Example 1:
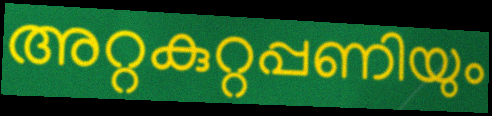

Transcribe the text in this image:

അറ്റകുറ്റപ്പണിയും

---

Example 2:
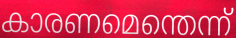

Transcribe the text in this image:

കാരണമെന്തെന്ന്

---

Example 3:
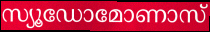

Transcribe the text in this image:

സ്യൂഡോമോണാസ്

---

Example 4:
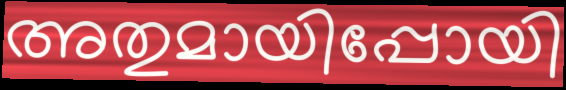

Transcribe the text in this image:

അതുമായിപ്പോയി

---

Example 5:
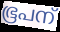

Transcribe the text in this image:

ഭൂപന്